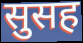
सुसह